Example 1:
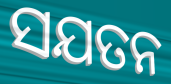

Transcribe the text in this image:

ସଯତନ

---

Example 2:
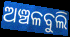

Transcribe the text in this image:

ଅଞ୍ଚଳବୁଲି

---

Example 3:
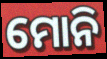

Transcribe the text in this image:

ମୋନି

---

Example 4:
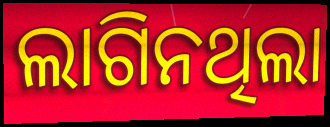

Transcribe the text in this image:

ଲାଗିନଥିଲା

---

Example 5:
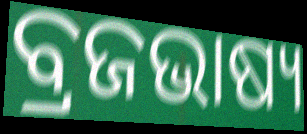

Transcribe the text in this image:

ବ୍ରଜଭାଷ୍ୟ